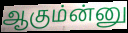
ஆகும்ன்னு